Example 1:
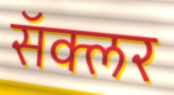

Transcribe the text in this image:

सॅक्लर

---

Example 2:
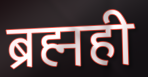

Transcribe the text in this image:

ब्रह्मही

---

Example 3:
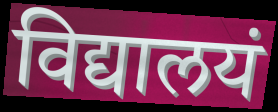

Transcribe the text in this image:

विद्यालयं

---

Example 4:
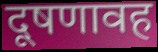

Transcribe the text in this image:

दूषणावह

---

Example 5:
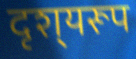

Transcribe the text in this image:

दृश्यरूप